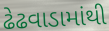
ઢેઢવાડામાંથી